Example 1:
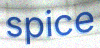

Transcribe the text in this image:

spice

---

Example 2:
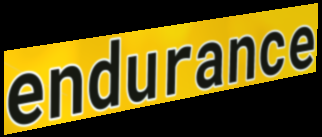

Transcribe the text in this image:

endurance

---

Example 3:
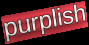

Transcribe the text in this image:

purplish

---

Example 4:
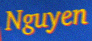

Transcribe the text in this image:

Nguyen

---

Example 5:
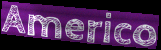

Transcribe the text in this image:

Americo